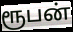
ரூபன்